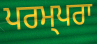
ਪਰਮ੍ਪਰਾ